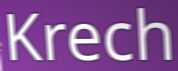
Krech